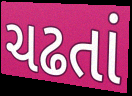
ચઢતાં